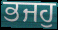
ਭਜਹੁ